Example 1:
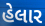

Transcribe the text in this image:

હેલાર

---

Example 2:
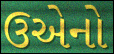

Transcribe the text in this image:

ઉએનો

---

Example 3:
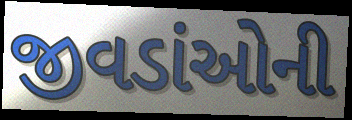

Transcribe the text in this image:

જીવડાંઓની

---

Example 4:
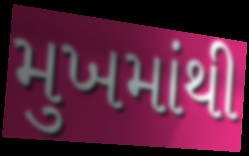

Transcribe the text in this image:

મુખમાંથી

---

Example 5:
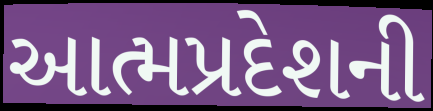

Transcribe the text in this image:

આત્મપ્રદેશની